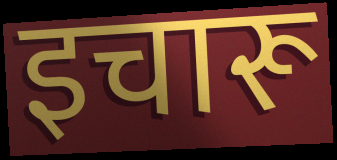
इचारू